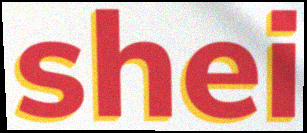
shei